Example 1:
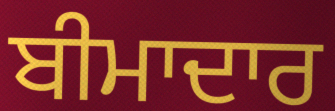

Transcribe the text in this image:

ਬੀਮਾਦਾਰ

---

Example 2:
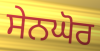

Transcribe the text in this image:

ਸੇਨਘੋਰ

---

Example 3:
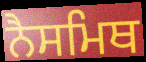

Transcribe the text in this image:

ਨੈਸਮਿਥ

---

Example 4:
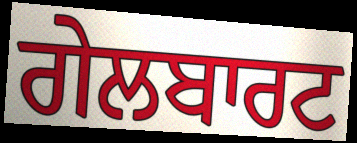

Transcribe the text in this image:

ਗੇਲਬਾਰਟ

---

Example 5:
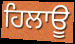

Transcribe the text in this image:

ਹਿਲਾਊ